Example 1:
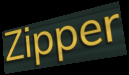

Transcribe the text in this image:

Zipper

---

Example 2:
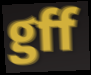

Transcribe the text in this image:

gff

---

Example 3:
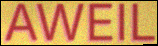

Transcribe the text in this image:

AWEIL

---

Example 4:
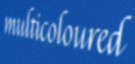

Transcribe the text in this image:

multicoloured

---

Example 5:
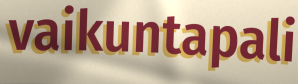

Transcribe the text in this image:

vaikuntapali